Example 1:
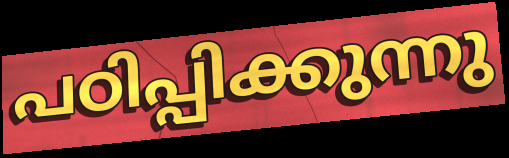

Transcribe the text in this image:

പഠിപ്പിക്കുന്നു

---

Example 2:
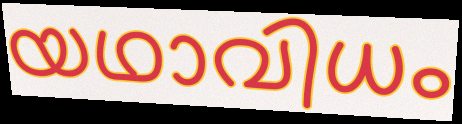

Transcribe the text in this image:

യഥാവിധം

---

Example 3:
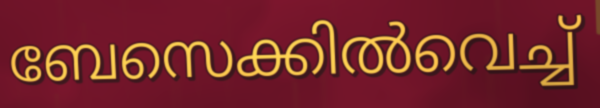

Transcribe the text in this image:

ബേസെക്കിൽവെച്ച്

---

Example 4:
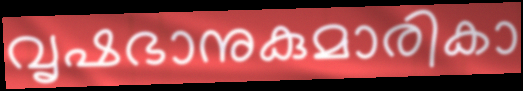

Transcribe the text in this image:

വൃഷഭാനുകുമാരികാ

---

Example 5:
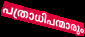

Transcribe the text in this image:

പത്രാധിപന്മാരും